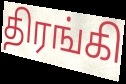
திரங்கி